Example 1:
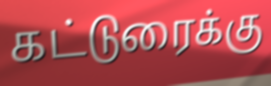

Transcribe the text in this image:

கட்டுரைக்கு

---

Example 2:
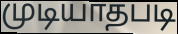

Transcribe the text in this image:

முடியாதபடி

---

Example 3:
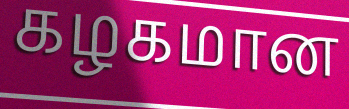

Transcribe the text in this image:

கழகமான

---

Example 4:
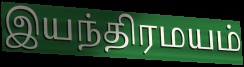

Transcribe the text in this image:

இயந்திரமயம்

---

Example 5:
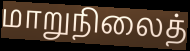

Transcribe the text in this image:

மாறுநிலைத்